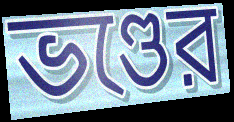
ভণ্ডের